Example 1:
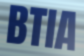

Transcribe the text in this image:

BTIA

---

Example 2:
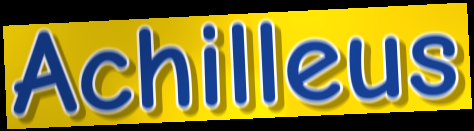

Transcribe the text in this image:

Achilleus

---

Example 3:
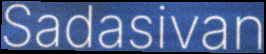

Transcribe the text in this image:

Sadasivan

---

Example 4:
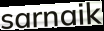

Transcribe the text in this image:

sarnaik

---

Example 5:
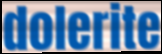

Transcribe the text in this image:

dolerite